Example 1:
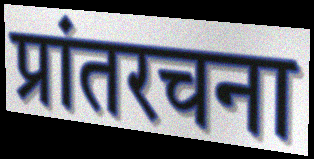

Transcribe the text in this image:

प्रांतरचना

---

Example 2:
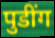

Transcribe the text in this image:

पुडींग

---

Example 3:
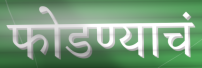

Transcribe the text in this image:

फोडण्याचं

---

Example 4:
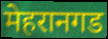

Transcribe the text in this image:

मेहरानगड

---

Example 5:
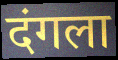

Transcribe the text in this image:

दंगला